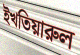
ইখতিয়ারুল